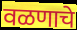
वळणाचे